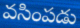
వసింపడు